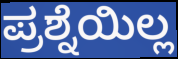
ಪ್ರಶ್ನೆಯಿಲ್ಲ